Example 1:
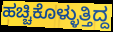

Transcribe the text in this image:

ಹಚ್ಚಿಕೊಳ್ಳುತ್ತಿದ್ದ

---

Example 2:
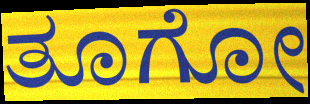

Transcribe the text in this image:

ತೂಗೋ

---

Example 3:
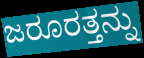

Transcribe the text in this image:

ಜರೂರತ್ತನ್ನು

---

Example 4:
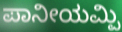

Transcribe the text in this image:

ಪಾನೀಯಮ್ಪಿ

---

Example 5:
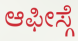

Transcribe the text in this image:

ಆಫೀಸ್ಗೆ